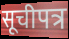
सूचीपत्र